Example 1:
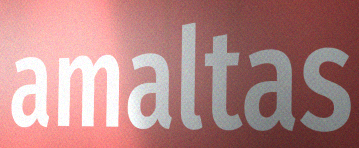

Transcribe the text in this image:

amaltas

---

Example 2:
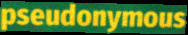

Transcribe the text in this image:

pseudonymous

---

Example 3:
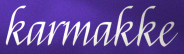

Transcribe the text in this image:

karmakke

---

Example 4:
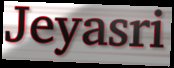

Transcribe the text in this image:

Jeyasri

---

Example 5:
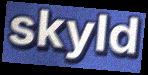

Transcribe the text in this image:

skyld